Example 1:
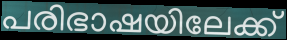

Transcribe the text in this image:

പരിഭാഷയിലേക്ക്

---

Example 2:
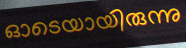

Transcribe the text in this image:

ഓടെയായിരുന്നു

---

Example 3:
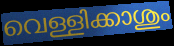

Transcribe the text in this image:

വെള്ളിക്കാശും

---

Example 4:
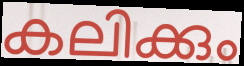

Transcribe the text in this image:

കലിക്കും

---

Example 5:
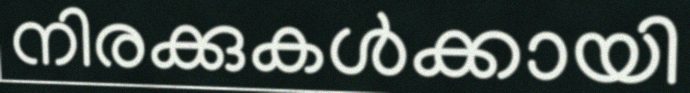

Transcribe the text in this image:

നിരക്കുകൾക്കായി